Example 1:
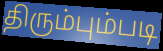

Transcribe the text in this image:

திரும்பும்படி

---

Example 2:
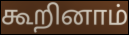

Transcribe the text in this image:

கூறினாம்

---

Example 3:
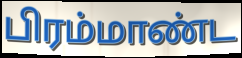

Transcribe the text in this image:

பிரம்மாண்ட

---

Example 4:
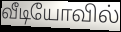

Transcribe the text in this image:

வீடியோவில்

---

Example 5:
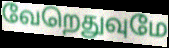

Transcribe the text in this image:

வேறெதுவுமே